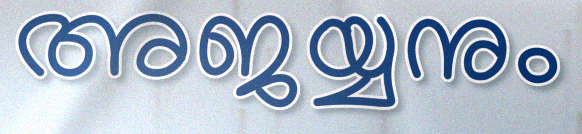
അജയ്യനും